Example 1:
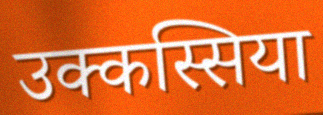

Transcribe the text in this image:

उक्कस्सिया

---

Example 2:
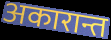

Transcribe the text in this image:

अकारान्त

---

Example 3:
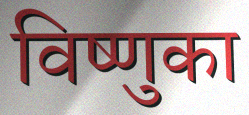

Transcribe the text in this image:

विष्णुका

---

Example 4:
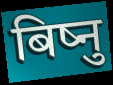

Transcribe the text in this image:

बिष्नु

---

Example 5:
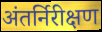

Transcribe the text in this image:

अंतर्निरीक्षण